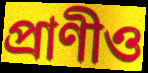
প্রাণীও